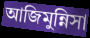
আজিমুন্নিসা